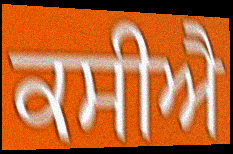
ਕਸੀਐ